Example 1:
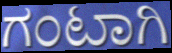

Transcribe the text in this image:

ಗಂಟಾಗಿ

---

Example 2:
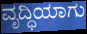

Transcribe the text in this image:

ವೃದ್ಧಿಯಾಗು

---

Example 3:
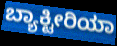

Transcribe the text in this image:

ಬ್ಯಾಕ್ಟೀರಿಯಾ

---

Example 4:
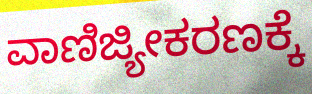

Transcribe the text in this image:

ವಾಣಿಜ್ಯೀಕರಣಕ್ಕೆ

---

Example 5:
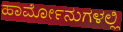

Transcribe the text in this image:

ಹಾರ್ಮೋನುಗಳಲ್ಲಿ